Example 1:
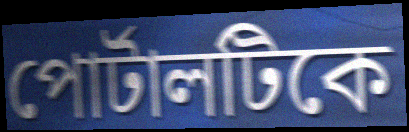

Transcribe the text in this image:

পোর্টালটিকে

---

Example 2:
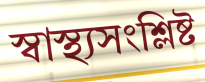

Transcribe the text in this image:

স্বাস্থ্যসংশ্লিষ্ট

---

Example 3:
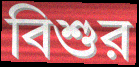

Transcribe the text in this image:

বিশুর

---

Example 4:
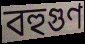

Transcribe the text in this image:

বহুগুণ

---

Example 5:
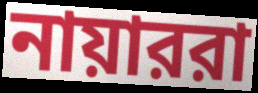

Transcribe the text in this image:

নায়াররা